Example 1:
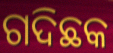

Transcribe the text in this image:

ଗଦିଛକ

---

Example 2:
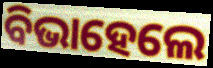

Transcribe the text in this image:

ବିଭାହେଲେ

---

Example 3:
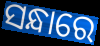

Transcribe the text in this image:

ସନ୍ଧାରେ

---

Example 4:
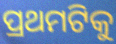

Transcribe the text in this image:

ପ୍ରଥମଟିକୁ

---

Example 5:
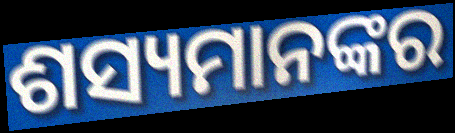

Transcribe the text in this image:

ଶସ୍ୟମାନଙ୍କର